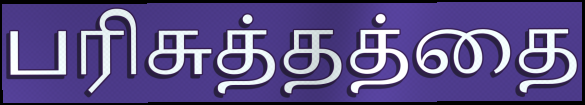
பரிசுத்தத்தை